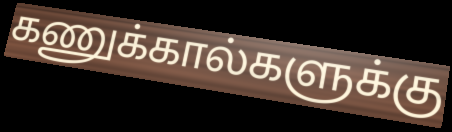
கணுக்கால்களுக்கு